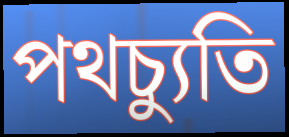
পথচ্যুতি